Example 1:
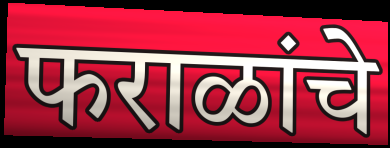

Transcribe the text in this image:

फराळांचे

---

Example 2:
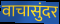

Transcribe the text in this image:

वाचासुंदर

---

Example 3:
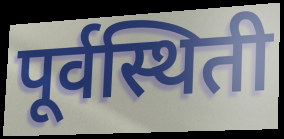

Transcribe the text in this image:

पूर्वस्थिती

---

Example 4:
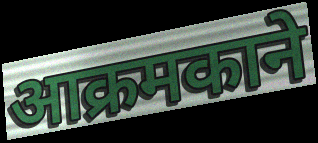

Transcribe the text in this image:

आक्रमकाने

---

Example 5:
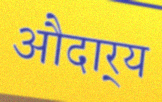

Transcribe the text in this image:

औदार्य